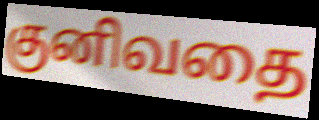
குனிவதை